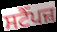
ਸਟੈੱਪਜ਼